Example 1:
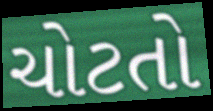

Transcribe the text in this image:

ચોટતો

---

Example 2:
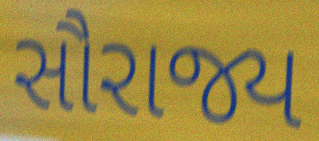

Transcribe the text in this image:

સૌરાજ્ય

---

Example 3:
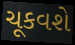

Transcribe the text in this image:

ચૂકવશે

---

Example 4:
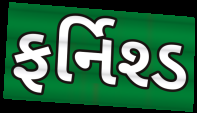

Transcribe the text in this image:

ફર્નિશ્ડ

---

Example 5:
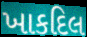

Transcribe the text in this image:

ખાકદિલ